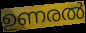
ഉണരൽ